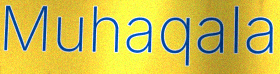
Muhaqala